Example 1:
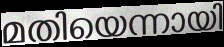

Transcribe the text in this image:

മതിയെന്നായി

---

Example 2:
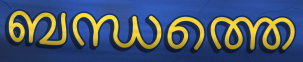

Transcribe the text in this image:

ബന്ധത്തെ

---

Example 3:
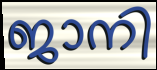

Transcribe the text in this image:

ജാനി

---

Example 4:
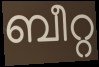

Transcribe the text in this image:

ബീറ്റ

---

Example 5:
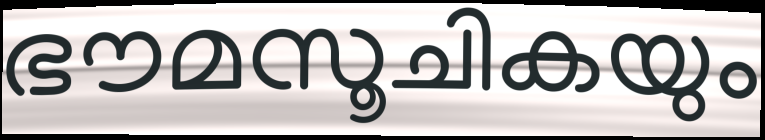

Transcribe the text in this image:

ഭൗമസൂചികയും